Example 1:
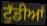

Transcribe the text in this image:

ਟੁੱਡੀਆਂ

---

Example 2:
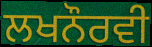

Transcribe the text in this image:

ਲਖਨੌਰਵੀ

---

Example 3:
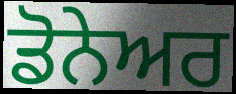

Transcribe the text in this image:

ਡੋਨੇਅਰ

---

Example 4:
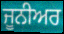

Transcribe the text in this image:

ਜੂਨੀਅਰ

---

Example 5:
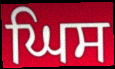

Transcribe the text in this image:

ਘਿਸ